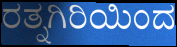
ರತ್ನಗಿರಿಯಿಂದ